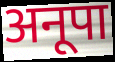
अनूपा